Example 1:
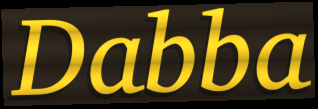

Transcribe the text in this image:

Dabba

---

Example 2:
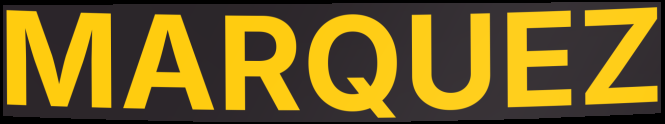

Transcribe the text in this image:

MARQUEZ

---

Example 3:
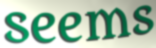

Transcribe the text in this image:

seems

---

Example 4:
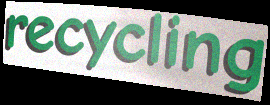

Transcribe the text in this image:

recycling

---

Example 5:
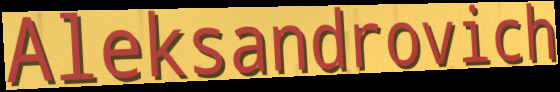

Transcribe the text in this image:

Aleksandrovich